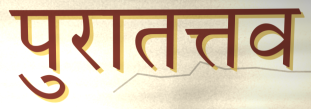
पुरातत्तव